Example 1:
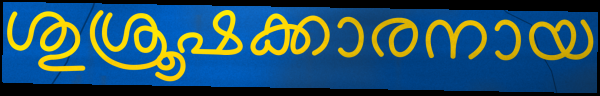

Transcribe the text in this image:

ശുശ്രൂഷക്കാരനായ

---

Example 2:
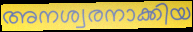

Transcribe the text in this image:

അനശ്വരനാക്കിയ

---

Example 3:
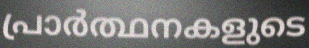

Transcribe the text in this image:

പ്രാർത്ഥനകളുടെ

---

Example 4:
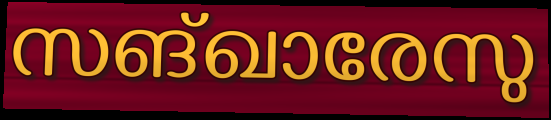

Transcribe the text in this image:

സങ്ഖാരേസു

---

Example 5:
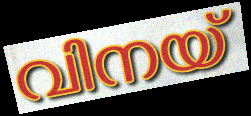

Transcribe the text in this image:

വിനയ്